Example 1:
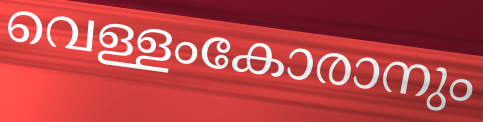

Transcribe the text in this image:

വെള്ളംകോരാനും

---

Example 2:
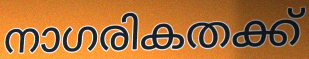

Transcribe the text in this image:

നാഗരികതക്ക്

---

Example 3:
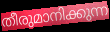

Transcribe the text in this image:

തീരുമാനിക്കുന്ന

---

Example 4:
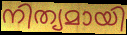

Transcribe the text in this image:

നിത്യമായി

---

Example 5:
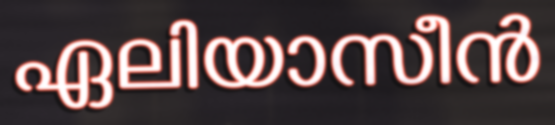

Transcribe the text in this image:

ഏലിയാസീൻ